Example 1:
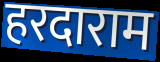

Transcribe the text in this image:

हरदाराम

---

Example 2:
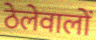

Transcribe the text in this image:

ठेलेवालों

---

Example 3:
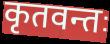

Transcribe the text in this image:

कृतवन्तः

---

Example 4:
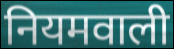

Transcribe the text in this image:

नियमवाली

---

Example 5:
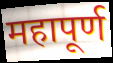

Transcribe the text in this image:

महापूर्ण